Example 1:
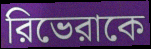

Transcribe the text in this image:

রিভেরাকে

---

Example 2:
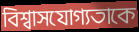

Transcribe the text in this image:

বিশ্বাসযোগ্যতাকে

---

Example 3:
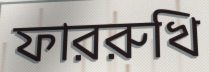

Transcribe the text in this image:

ফাররুখি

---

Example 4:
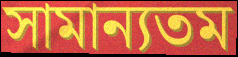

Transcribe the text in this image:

সামান্যতম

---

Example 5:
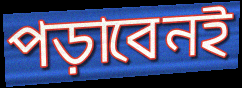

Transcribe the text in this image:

পড়াবেনই